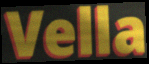
Vella